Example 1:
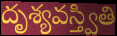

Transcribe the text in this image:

దృశ్యవస్త్వితి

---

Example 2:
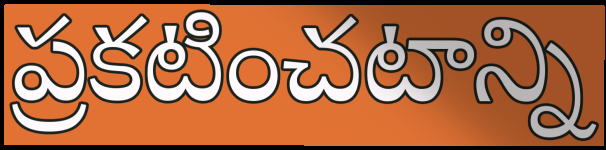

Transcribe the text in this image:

ప్రకటించటాన్ని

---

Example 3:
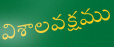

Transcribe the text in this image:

విశాలవక్షము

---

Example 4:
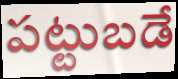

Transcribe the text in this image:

పట్టుబడే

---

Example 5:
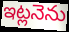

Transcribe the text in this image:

ఇట్లనెను